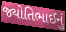
જ્યોતિભાઈનું